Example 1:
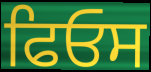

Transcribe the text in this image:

ਫਿਓਸ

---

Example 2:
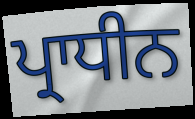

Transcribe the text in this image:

ਪ੍ਰਾਧੀਨ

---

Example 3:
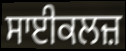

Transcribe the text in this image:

ਸਾਈਕਲਜ਼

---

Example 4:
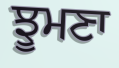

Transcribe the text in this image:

ਝੂਮਣਾ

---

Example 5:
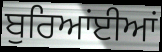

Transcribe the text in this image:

ਬੁਰਿਆਂਈਆਂ